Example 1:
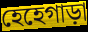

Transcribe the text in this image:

হেহেগাড়া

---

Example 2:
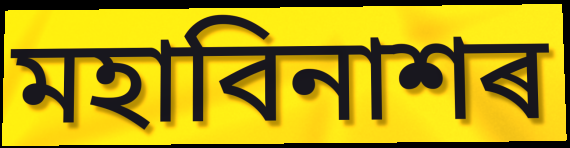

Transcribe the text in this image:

মহাবিনাশৰ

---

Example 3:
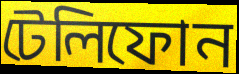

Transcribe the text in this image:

টেলিফোন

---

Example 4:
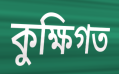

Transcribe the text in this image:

কুক্ষিগত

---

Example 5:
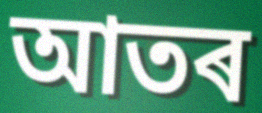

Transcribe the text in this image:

আতৰ